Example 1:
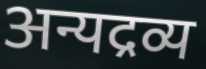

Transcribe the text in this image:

अन्यद्रव्य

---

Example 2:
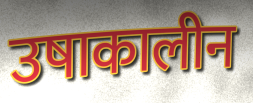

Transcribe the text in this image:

उषाकालीन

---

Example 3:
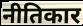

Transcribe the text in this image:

नीतिकार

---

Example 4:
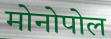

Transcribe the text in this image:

मोनोपोल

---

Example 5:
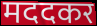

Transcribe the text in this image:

मददकर